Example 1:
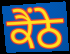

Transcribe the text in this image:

ਕੈਂਠੇ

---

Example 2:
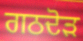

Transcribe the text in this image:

ਗਠਦੋੜ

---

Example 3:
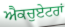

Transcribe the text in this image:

ਐਕਚੁਏਟਰਾਂ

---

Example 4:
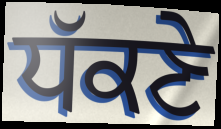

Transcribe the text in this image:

ਧੱਕਣੇ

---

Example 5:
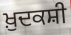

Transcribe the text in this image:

ਖ਼ੁਦਕਸ਼ੀ